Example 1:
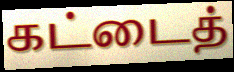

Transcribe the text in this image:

கட்டைத்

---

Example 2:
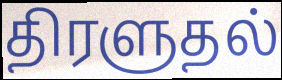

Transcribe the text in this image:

திரளுதல்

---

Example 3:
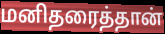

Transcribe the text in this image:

மனிதரைத்தான்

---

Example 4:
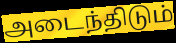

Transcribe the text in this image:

அடைந்திடும்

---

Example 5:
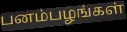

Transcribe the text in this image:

பனம்பழங்கள்